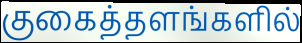
குகைத்தளங்களில்